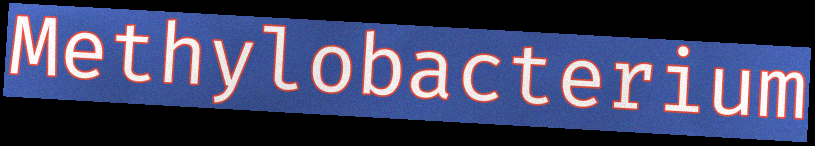
Methylobacterium